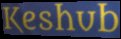
Keshub